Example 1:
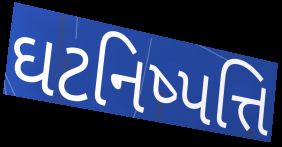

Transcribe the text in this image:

ઘટનિષ્પત્તિ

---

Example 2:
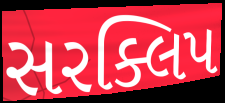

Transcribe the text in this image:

સરક્લિપ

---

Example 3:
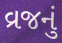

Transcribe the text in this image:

વ્રજનું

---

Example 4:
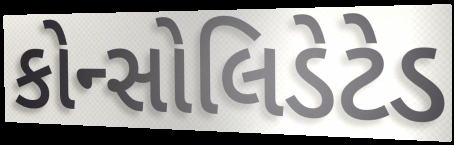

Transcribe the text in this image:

કોન્સોલિડેટેડ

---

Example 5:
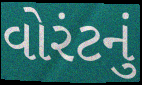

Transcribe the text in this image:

વોરંટનું